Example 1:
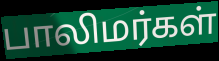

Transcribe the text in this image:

பாலிமர்கள்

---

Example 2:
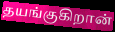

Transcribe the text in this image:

தயங்குகிறான்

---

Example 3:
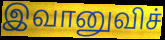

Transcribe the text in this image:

இவானுவிச்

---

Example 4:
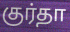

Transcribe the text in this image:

குர்தா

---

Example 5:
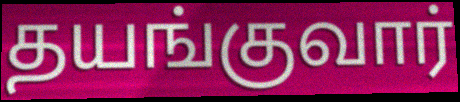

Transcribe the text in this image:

தயங்குவார்